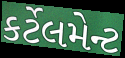
કર્ટેલમેન્ટ